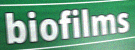
biofilms